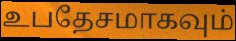
உபதேசமாகவும்